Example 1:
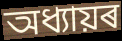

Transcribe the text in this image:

অধ্যায়ৰ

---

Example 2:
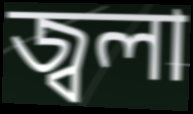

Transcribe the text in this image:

জ্বলা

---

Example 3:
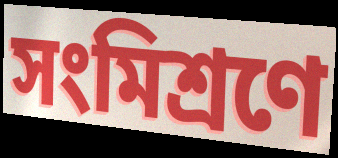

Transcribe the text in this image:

সংমিশ্ৰণে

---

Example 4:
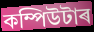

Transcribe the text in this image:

কম্পিউটাৰ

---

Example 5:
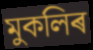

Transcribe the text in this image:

মুকলিৰ